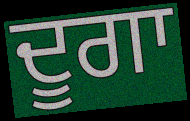
ਦੂਗਾ